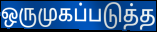
ஒருமுகப்படுத்த